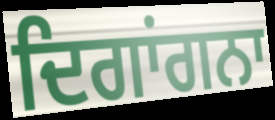
ਦਿਗਾਂਗਨਾ